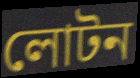
লোটন